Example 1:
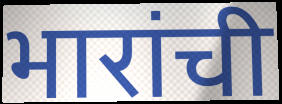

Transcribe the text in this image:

भारांची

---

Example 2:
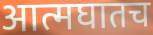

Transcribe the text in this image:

आत्मघातच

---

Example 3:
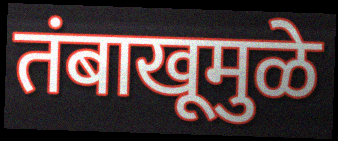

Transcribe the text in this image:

तंबाखूमुळे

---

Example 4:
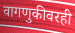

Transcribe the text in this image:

वागणुकीवरही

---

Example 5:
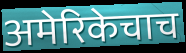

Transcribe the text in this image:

अमेरिकेचाच